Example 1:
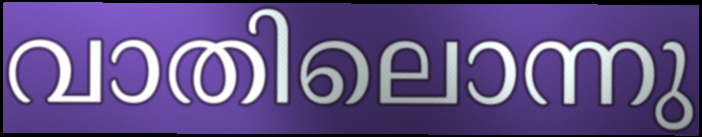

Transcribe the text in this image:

വാതിലൊന്നു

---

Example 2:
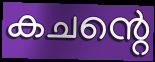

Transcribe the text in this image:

കചന്റെ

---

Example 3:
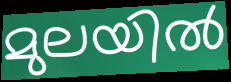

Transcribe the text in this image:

മുലയിൽ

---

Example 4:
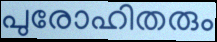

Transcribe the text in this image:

പുരോഹിതരും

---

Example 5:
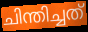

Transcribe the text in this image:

ചിന്തിച്ചത്